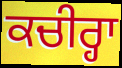
ਕਚੀਰ੍ਹਾ